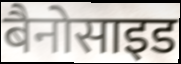
बैनोसाइड